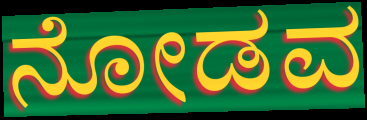
ನೋಡವ